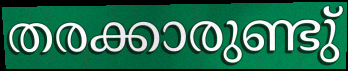
തരക്കാരുണ്ടു്